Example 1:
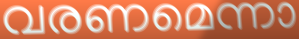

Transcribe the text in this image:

വരണമെന്നാ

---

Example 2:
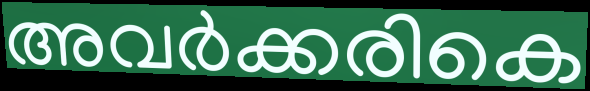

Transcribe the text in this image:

അവർക്കരികെ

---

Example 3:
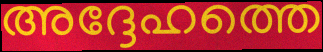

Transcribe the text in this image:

അദ്ദേഹത്തെ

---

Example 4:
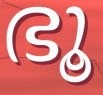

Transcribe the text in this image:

ഭൂ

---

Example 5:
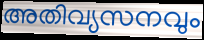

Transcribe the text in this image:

അതിവ്യസനവും